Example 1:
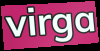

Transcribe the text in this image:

virga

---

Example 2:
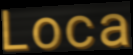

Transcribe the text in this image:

Loca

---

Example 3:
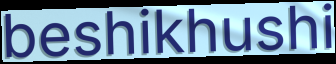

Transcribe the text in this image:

beshikhushi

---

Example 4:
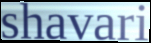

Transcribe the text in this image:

shavari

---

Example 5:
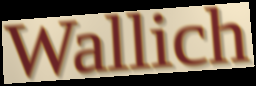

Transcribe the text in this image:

Wallich